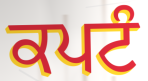
ਕਪਟੰ